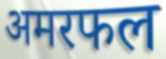
अमरफल